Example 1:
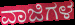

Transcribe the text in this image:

ವಾಜಿಗಳ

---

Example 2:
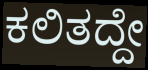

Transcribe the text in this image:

ಕಲಿತದ್ದೇ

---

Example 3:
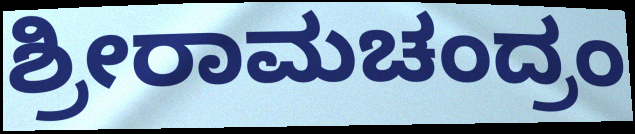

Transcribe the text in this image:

ಶ್ರೀರಾಮಚಂದ್ರಂ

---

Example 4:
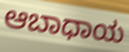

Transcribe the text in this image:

ಆಬಾಧಾಯ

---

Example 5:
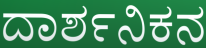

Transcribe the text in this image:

ದಾರ್ಶನಿಕನ